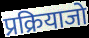
प्रक्रियाजो